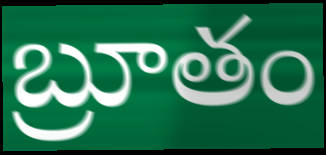
బ్రూతం